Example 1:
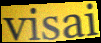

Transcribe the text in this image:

visai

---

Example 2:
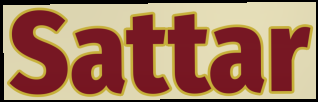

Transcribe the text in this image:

Sattar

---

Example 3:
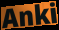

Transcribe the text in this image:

Anki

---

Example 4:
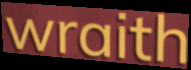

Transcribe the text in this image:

wraith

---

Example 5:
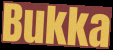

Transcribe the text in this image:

Bukka